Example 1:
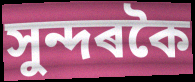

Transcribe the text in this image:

সুন্দৰকৈ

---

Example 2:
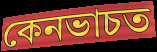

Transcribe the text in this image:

কেনভাচত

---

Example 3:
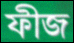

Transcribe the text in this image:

ফীজ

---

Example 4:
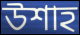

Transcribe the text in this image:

উশাহ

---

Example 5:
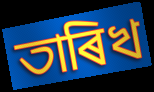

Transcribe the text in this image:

তাৰিখ